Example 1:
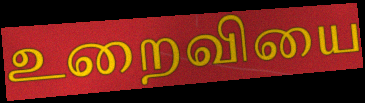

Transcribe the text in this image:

உறைவியை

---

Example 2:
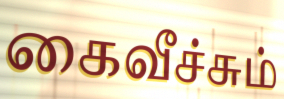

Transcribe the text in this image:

கைவீச்சும்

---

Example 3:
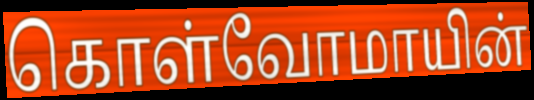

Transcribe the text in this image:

கொள்வோமாயின்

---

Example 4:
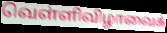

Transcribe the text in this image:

வெள்ளிவிழாவைக்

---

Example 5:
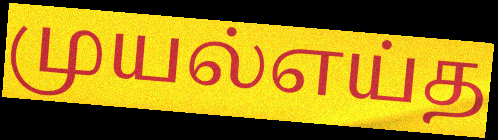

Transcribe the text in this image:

முயல்எய்த